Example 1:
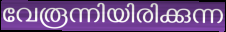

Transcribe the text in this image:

വേരൂന്നിയിരിക്കുന്ന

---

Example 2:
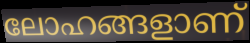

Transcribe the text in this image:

ലോഹങ്ങളാണ്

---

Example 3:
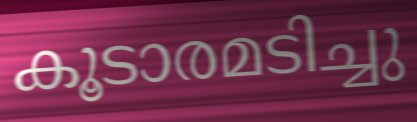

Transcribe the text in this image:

കൂടാരമടിച്ചു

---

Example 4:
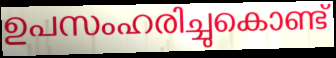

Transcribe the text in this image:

ഉപസംഹരിച്ചുകൊണ്ട്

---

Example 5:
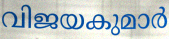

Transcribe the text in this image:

വിജയകുമാർ